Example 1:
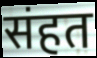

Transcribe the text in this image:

संहत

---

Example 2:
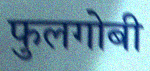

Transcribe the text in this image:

फुलगोबी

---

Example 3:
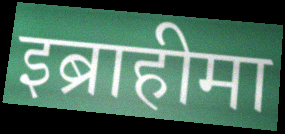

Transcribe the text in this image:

इब्राहीमा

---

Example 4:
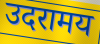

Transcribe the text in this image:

उदरामय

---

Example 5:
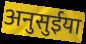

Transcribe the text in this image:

अनुसुईया